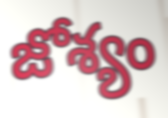
జోశ్యం